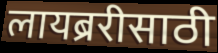
लायब्ररीसाठी